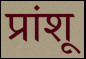
प्रांशू